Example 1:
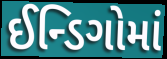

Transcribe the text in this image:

ઈન્ડિગોમાં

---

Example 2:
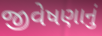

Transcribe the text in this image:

જીવેષણાનું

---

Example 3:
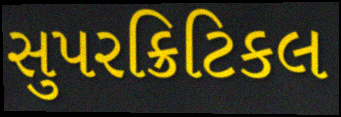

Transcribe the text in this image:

સુપરક્રિટિકલ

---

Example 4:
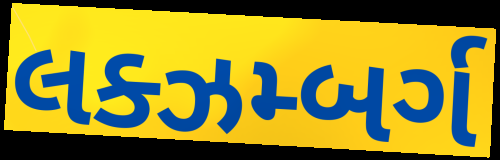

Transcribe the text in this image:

લક્ઝમ્બર્ગ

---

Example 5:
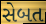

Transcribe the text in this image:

સેબત